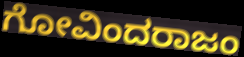
ಗೋವಿಂದರಾಜಂ